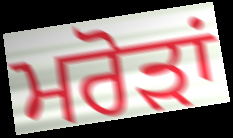
ਮਰੋੜਾਂ